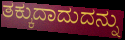
ತಕ್ಕುದಾದುದನ್ನು